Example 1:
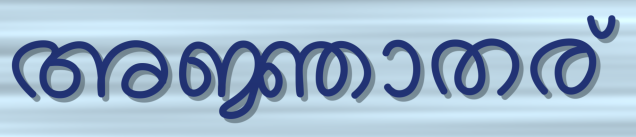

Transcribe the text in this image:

അജ്ഞാതര്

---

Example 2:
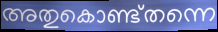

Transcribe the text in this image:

അതുകൊണ്ട്തന്നെ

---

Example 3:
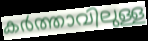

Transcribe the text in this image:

കർത്താവിലുള്ള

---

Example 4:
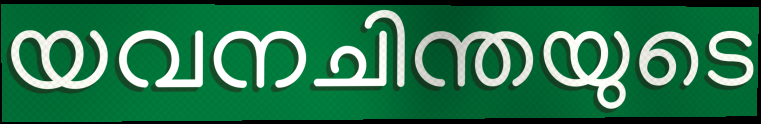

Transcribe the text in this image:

യവനചിന്തയുടെ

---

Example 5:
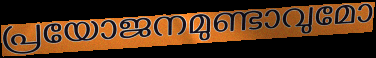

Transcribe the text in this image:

പ്രയോജനമുണ്ടാവുമോ